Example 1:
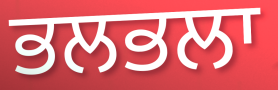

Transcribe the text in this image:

ਭਲਭਲਾ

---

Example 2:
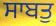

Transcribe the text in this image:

ਸਾਬਤੁ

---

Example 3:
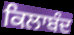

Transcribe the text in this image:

ਕਿਲਾਬੰਦ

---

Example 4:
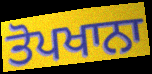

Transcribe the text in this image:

ਤੋਪਖਾਨਾ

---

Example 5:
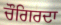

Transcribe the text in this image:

ਚੌਗਿਰਦਾ